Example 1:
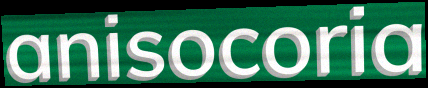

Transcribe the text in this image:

anisocoria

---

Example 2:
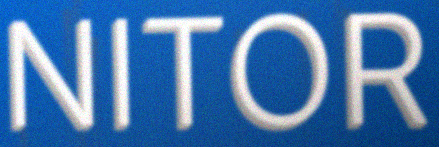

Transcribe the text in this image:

NITOR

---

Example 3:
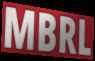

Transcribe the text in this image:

MBRL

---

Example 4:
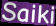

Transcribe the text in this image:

Saiki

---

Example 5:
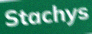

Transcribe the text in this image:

Stachys